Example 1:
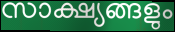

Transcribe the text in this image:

സാക്ഷ്യങ്ങളും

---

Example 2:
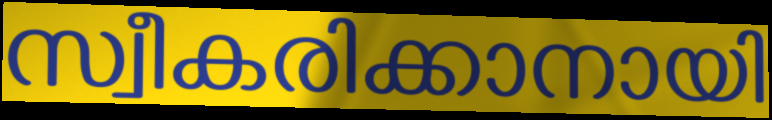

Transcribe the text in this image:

സ്വീകരിക്കാനായി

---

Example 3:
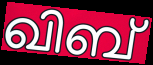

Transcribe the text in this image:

ഖിബ്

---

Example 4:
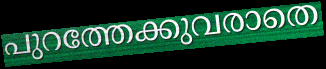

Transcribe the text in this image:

പുറത്തേക്കുവരാതെ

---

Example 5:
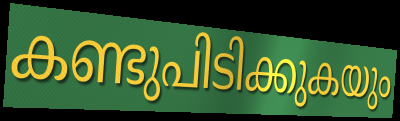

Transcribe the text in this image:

കണ്ടുപിടിക്കുകയും